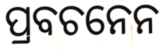
ପ୍ରବଚନେନ